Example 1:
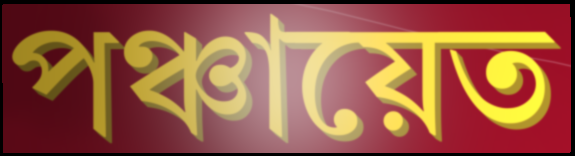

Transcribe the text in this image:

পঞ্চায়েত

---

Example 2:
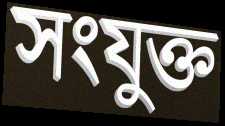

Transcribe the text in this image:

সংযুক্ত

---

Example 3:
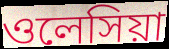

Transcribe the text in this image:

ওলেসিয়া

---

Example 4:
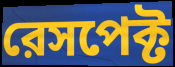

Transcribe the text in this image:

রেসপেক্ট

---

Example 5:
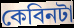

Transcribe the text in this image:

কেবিনটা